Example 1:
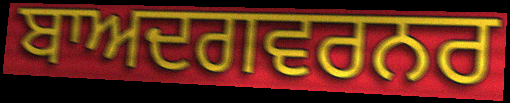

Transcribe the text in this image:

ਬਾਅਦਗਵਰਨਰ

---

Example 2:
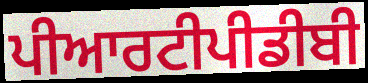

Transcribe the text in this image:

ਪੀਆਰਟੀਪੀਡੀਬੀ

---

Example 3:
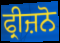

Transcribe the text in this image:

ਫ੍ਰੀਜ਼ਨੋ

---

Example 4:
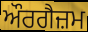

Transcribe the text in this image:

ਔਰਗੈਜ਼ਮ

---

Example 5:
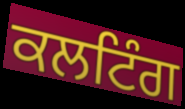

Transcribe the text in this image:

ਕਲਟਿੰਗ